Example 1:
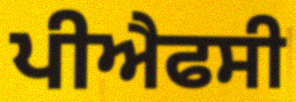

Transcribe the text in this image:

ਪੀਐਫਸੀ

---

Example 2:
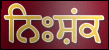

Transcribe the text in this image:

ਨਿਃਸ਼ਂਕ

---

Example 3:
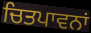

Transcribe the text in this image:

ਚਿਤਪਾਵਨਾਂ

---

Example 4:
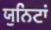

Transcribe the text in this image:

ਯੁਨਿਟਾਂ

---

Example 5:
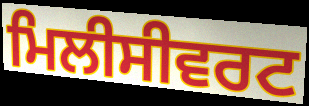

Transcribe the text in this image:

ਮਿਲੀਸੀਵਰਟ